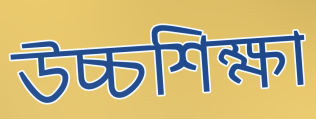
উচ্চশিক্ষা